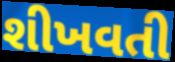
શીખવતી